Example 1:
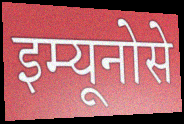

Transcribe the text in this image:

इम्यूनोसे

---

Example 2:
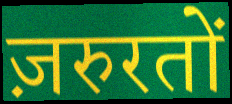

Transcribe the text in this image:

ज़रुरतों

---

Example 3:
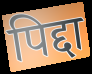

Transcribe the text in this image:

पिद्दा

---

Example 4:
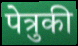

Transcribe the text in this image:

पेत्रुकी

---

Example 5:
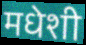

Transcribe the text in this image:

मधेशी